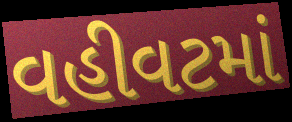
વહીવટમાં